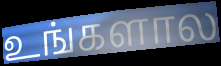
உங்களால